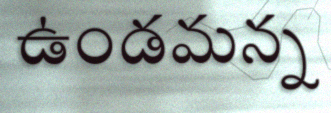
ఉండమన్న